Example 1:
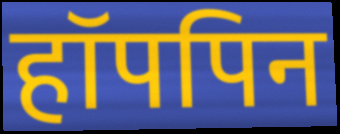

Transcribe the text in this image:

हॉपपिन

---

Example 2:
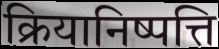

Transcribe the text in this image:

क्रियानिष्पत्ति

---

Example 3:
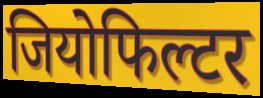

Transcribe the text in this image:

जियोफिल्टर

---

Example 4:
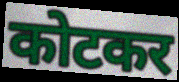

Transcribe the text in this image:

कोटकर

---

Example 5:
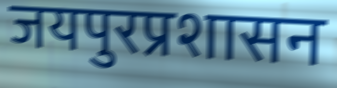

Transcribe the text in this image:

जयपुरप्रशासन